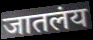
जातलंय